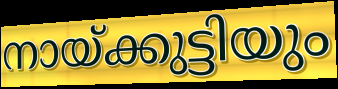
നായ്ക്കുട്ടിയും